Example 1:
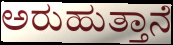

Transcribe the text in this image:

ಅರುಹುತ್ತಾನೆ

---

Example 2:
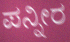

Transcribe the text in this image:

ಪನ್ನೀರ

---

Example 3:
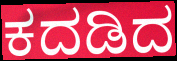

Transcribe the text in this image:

ಕದಡಿದ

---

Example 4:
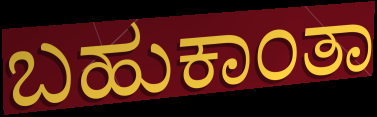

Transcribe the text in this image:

ಬಹುಕಾಂತಾ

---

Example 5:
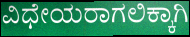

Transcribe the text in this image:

ವಿಧೇಯರಾಗಲಿಕ್ಕಾಗಿ